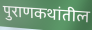
पुराणकथांतील